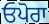
ਓਪੋਰਾ